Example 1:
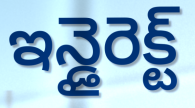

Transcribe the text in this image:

ఇన్డైరెక్ట్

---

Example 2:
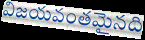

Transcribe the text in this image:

విజయవంతమైనది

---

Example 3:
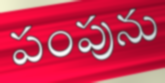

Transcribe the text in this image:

పంపును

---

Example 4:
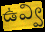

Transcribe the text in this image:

ఉవ్వి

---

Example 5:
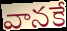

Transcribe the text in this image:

వానకే